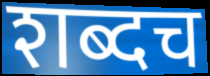
शब्दच